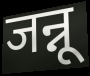
जन्नू